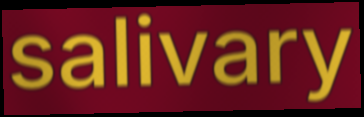
salivary